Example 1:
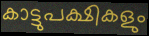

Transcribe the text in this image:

കാട്ടുപക്ഷികളും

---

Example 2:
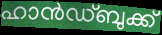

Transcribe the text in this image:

ഹാൻഡ്ബുക്ക്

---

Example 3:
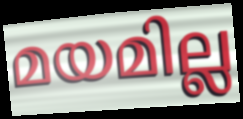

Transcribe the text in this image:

മയമില്ല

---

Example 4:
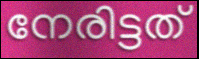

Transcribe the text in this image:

നേരിട്ടത്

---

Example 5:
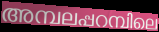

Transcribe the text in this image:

അമ്പലപ്പറമ്പിലെ